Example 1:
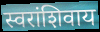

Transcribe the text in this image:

स्वरांशिवाय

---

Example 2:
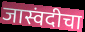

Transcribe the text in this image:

जास्वंदीचा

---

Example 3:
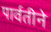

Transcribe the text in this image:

पार्वतीने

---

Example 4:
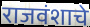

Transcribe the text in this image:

राजवंशाचे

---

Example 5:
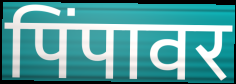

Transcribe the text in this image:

पिंपावर